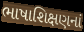
ભાષાશિક્ષણનાં